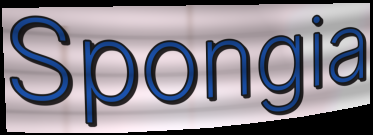
Spongia